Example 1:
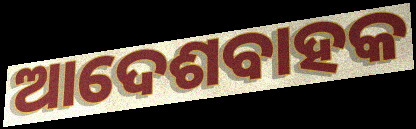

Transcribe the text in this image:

ଆଦେଶବାହକ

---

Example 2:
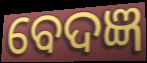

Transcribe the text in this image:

ବେଦଜ୍ଞ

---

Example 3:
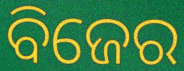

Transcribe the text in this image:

ବିଜେର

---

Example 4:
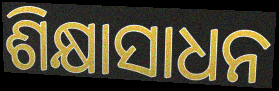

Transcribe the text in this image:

ଶିକ୍ଷାସାଧନ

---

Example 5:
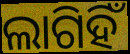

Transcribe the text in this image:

ଲାଗିହିଁ